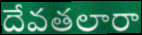
దేవతలారా